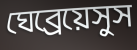
ঘেব্রেয়েসুস